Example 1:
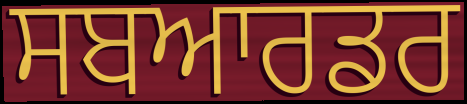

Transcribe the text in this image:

ਸਬਆਰਡਰ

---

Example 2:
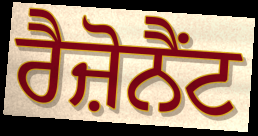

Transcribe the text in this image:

ਰੈਜ਼ੋਨੈਂਟ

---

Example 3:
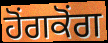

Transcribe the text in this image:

ਹੋਂਗਕੋਂਗ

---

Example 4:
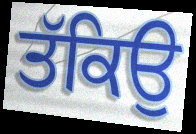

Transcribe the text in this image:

ਤੱਕਿਉ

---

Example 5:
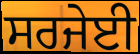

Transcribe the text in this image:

ਸਰਜੇਈ